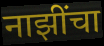
नाझींचा